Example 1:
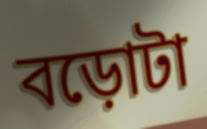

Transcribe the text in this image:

বড়োটা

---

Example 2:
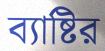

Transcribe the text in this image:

ব্যাষ্টির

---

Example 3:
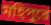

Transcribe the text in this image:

মহিপুরে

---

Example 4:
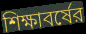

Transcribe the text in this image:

শিক্ষাবর্ষের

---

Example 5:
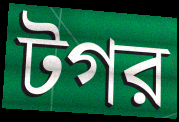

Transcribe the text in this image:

টগর